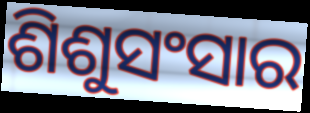
ଶିଶୁସଂସାର